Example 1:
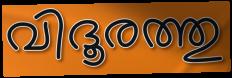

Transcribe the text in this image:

വിദൂരത്തു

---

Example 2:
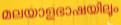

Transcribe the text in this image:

മലയാളഭാഷയിലും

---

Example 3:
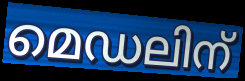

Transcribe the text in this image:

മെഡലിന്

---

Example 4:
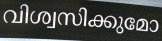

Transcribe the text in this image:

വിശ്വസിക്കുമോ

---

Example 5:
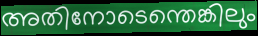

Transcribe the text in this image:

അതിനോടെന്തെങ്കിലും